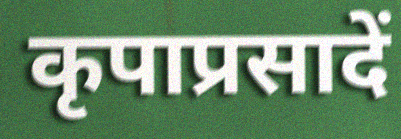
कृपाप्रसादें